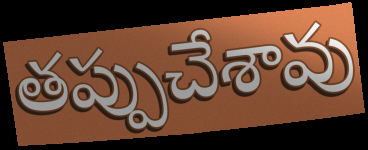
తప్పుచేశావు